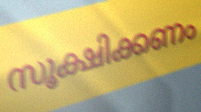
സൂക്ഷിക്കണം